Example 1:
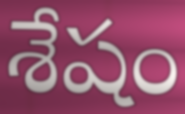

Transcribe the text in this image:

శేషం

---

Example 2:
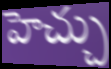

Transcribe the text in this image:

హెచ్చు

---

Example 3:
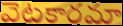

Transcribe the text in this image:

వెటకారమా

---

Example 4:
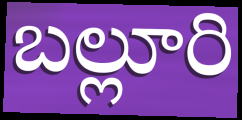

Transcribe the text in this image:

బల్లూరి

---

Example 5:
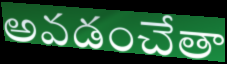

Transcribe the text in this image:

అవడంచేతా